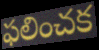
ఫలించక